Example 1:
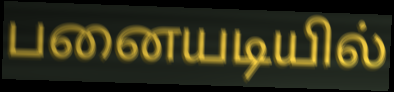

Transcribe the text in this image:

பனையடியில்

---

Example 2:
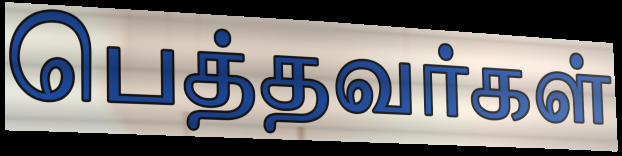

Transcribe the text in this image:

பெத்தவர்கள்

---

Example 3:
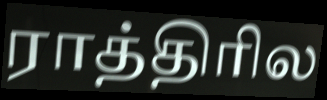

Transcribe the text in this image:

ராத்திரில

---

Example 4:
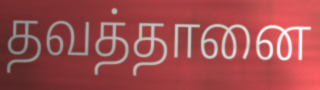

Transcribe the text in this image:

தவத்தானை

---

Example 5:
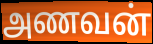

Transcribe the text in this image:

அணவன்